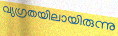
വ്യഗ്രതയിലായിരുന്നു